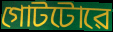
গোটটোৱে